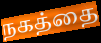
நகத்தை